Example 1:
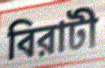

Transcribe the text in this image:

বিরাটী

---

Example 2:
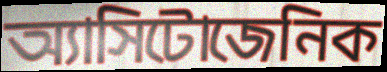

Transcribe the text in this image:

অ্যাসিটোজেনিক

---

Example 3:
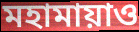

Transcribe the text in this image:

মহামায়াও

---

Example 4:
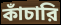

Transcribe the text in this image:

কাঁচারি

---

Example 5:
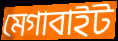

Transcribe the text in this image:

মেগাবাইট